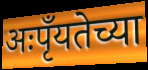
अःपृँयतेच्या